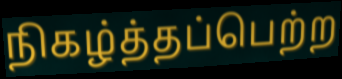
நிகழ்த்தப்பெற்ற